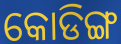
କୋଡିଙ୍ଗ